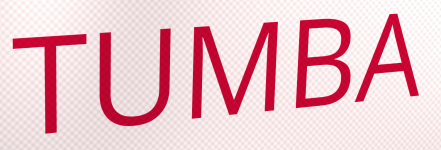
TUMBA